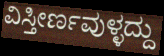
ವಿಸ್ತೀರ್ಣವುಳ್ಳದ್ದು